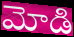
మోడి